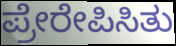
ಪ್ರೇರೇಪಿಸಿತು